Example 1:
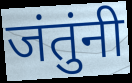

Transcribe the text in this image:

जंतुंनी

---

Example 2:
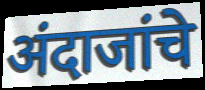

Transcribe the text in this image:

अंदाजांचे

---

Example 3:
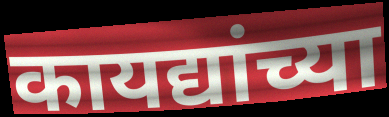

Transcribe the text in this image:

कायद्यांच्या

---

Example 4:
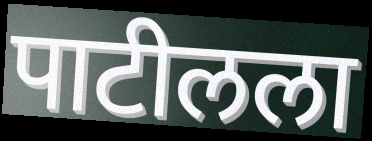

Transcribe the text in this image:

पाटीलला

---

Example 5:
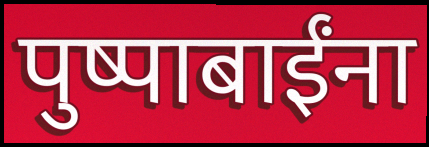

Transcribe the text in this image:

पुष्पाबाईंना